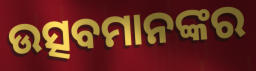
ଉତ୍ସବମାନଙ୍କର